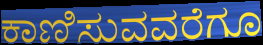
ಕಾಣಿಸುವವರೆಗೂ